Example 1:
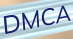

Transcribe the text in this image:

DMCA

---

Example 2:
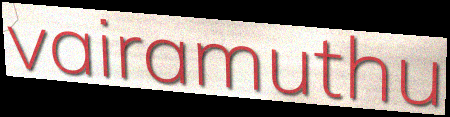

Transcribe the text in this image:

vairamuthu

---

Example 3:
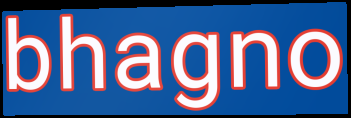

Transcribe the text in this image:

bhagno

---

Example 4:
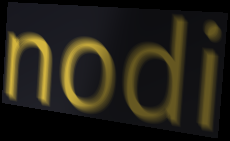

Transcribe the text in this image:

nodi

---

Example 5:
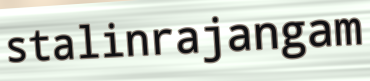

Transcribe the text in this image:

stalinrajangam